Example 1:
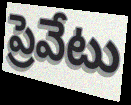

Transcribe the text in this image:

ప్రెవేటు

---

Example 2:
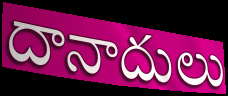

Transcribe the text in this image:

దానాదులు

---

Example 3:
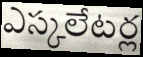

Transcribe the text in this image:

ఎస్కలేటర్ల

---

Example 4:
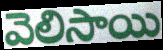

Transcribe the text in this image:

వెలిసాయి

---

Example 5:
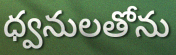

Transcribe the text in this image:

ధ్వనులతోను